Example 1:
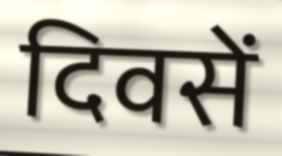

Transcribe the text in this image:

दिवसें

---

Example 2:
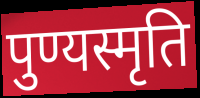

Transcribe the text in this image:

पुण्यस्मृति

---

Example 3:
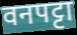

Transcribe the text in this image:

वनपट्टा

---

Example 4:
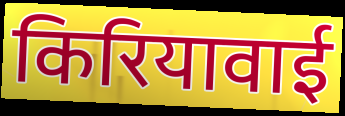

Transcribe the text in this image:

किरियावाई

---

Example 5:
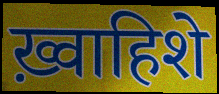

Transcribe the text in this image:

ख़्वाहिशे